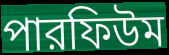
পারফিউম